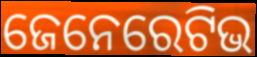
ଜେନେରେଟିଭ